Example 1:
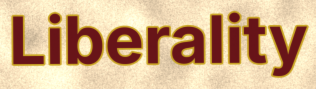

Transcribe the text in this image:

Liberality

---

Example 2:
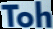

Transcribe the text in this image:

Toh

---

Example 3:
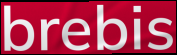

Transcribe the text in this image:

brebis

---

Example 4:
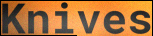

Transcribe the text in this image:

Knives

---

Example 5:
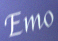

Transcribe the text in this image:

Emo